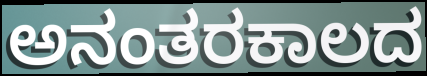
ಅನಂತರಕಾಲದ